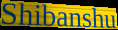
Shibanshu